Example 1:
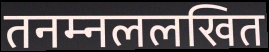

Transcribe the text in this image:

तनम्नललखित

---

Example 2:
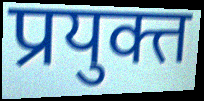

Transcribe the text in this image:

प्रयुक्त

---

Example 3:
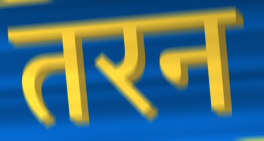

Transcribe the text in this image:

तरन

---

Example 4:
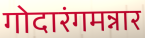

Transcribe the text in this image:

गोदारंगमन्नार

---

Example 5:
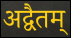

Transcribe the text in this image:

अद्वैतम्